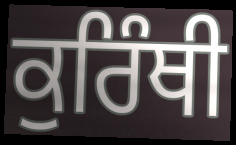
ਕੁਰਿੰਥੀ